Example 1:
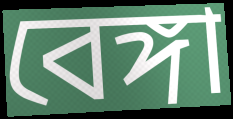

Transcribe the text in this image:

বেঙ্গা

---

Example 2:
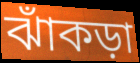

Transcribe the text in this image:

ঝাঁকড়া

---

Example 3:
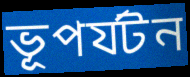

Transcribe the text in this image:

ভূপর্যটন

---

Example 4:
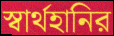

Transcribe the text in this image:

স্বার্থহানির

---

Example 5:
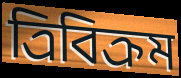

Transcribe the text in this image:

ত্রিবিক্রম